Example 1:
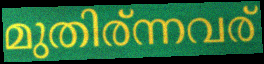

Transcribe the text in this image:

മുതിര്ന്നവര്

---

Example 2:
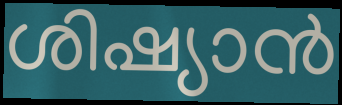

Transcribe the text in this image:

ശിഷ്യാൻ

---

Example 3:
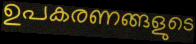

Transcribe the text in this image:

ഉപകരണങ്ങളുടെ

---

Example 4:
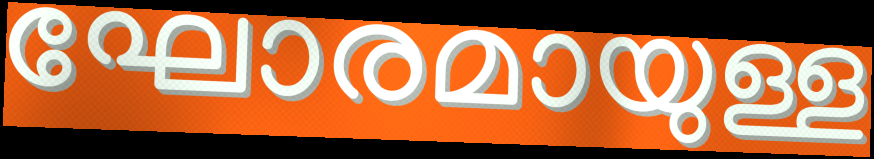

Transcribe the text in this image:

ഘോരമായുള്ള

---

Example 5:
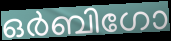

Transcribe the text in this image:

ഒർബിഗോ